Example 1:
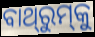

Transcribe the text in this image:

ବାଥ୍‌ରୁମ୍‌କୁ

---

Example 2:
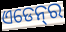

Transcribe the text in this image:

ଏଡେନ୍‍ର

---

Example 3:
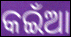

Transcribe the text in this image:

କଇଁଆ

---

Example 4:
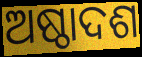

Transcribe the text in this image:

ଅଷ୍ଠାଦଶ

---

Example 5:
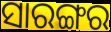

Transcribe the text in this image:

ସାରଙ୍ଗର